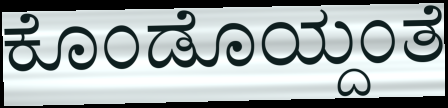
ಕೊಂಡೊಯ್ದಂತೆ